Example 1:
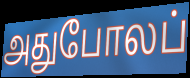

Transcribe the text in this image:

அதுபோலப்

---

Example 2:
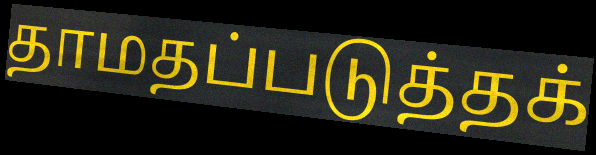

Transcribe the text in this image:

தாமதப்படுத்தக்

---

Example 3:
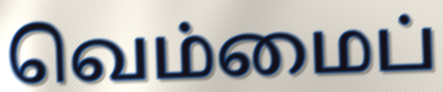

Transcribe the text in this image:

வெம்மைப்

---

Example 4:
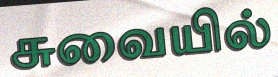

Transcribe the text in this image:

சுவையில்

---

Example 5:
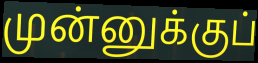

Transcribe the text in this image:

முன்னுக்குப்